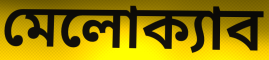
মেলোক্যাব